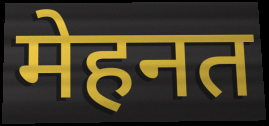
मेहनत